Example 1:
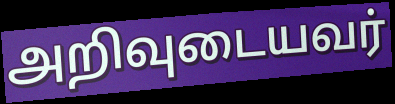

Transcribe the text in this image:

அறிவுடையவர்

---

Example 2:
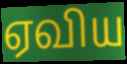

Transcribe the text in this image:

ஏவிய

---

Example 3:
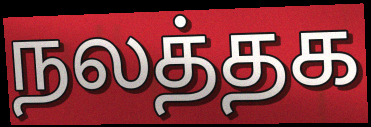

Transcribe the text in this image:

நலத்தக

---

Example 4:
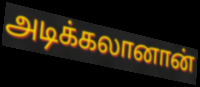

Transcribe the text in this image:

அடிக்கலானான்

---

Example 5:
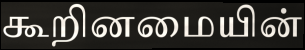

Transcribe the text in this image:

கூறினமையின்